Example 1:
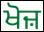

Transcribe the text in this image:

ਖੋਜ਼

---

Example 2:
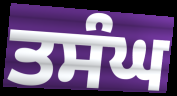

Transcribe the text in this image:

ਤਸੰਘ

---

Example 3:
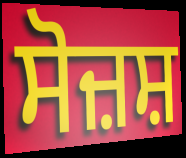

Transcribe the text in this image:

ਸੋਜ਼ਸ਼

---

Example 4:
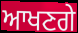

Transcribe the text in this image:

ਆਖਣਗੇ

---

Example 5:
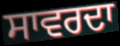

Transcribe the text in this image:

ਸਾਵਰਦਾ